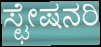
ಸ್ಟೇಷನರಿ